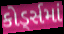
કોર્ડ્સમાં